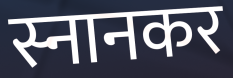
स्नानकर